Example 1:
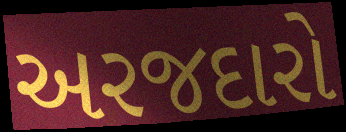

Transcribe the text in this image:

અરજદારો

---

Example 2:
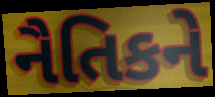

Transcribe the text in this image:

નૈતિકને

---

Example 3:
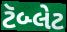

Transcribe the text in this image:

ટૅબ્લેટ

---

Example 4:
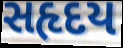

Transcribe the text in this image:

સહૃદય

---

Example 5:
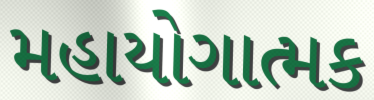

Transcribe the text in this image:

મહાયોગાત્મક